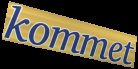
kommet